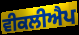
ਵੀਕਲੀਐਪ